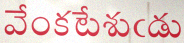
వేంకటేశుఁడు